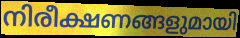
നിരീക്ഷണങ്ങളുമായി